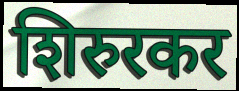
शिरुरकर